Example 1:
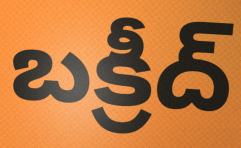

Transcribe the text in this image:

బక్రీద్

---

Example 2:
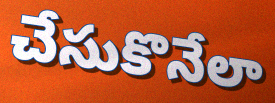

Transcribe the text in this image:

చేసుకొనేలా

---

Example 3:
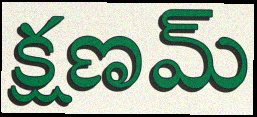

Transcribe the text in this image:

క్షణమ్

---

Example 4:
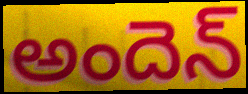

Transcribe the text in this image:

అందెన్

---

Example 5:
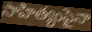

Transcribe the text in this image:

సాహిత్యంపైనా